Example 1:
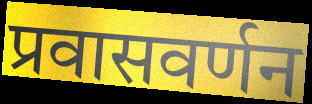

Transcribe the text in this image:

प्रवासवर्णन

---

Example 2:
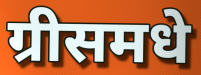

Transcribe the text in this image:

ग्रीसमधे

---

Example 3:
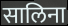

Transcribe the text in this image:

सालिना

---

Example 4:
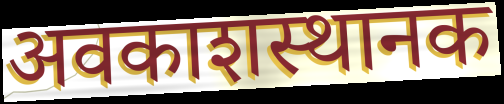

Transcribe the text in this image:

अवकाशस्थानक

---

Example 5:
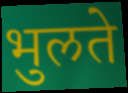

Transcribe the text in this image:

भुलते